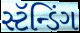
સ્ટૅન્ડિંગ